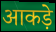
आकड़े